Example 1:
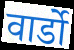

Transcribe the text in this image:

वार्डो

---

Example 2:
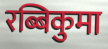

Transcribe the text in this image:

रब्बिकुमा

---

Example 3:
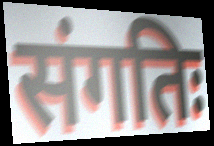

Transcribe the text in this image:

संगतिः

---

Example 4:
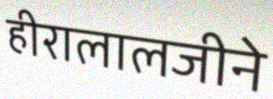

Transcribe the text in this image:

हीरालालजीने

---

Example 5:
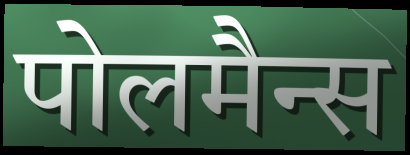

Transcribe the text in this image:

पोलमैन्स